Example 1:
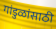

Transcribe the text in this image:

गांडुळांसाठी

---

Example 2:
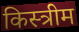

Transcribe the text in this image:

किस्त्रीम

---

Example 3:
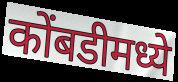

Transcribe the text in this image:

कोंबडीमध्ये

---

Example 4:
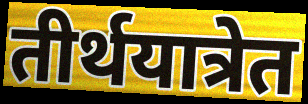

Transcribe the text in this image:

तीर्थयात्रेत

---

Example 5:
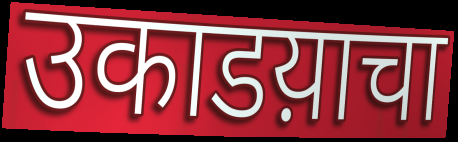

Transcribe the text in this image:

उकाडय़ाचा